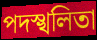
পদস্খলিতা